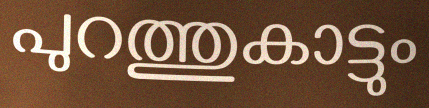
പുറത്തുകാട്ടും